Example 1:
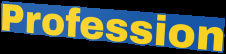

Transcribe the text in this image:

Profession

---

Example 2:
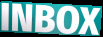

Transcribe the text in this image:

INBOX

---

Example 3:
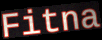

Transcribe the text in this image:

Fitna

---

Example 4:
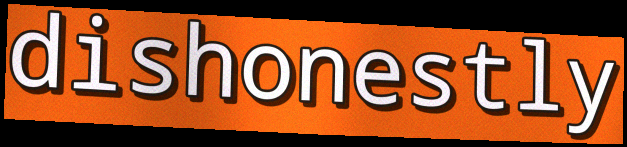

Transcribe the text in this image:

dishonestly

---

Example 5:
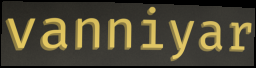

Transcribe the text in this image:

vanniyar